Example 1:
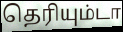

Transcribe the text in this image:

தெரியும்டா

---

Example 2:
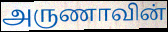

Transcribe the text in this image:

அருணாவின்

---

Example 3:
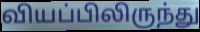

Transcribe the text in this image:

வியப்பிலிருந்து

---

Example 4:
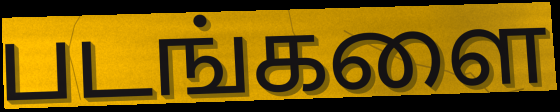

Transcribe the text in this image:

படங்களை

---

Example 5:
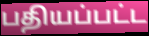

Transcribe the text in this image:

பதியப்பட்ட